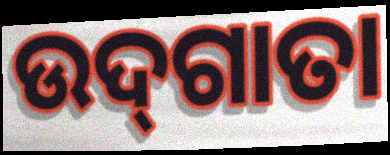
ଉଦ୍‌ଗାତା